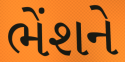
ભેંશને